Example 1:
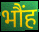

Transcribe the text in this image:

भौंह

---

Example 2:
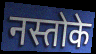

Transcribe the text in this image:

नस्तोके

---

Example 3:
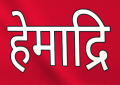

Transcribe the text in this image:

हेमाद्रि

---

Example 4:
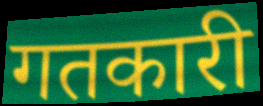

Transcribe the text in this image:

गतकारी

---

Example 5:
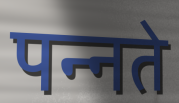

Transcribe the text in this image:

पन्नते